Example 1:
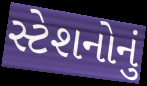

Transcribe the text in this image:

સ્ટેશનોનું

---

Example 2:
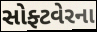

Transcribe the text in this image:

સોફ્ટવેરના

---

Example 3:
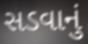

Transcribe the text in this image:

સડવાનું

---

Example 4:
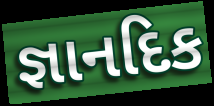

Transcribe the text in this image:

જ્ઞાનદિક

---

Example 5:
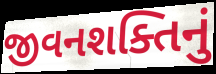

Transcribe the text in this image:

જીવનશક્તિનું